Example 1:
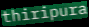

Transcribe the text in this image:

thiripura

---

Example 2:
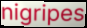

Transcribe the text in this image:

nigripes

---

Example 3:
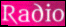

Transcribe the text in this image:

Radio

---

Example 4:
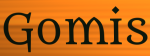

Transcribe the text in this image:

Gomis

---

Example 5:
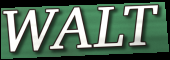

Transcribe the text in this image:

WALT